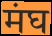
मंघ